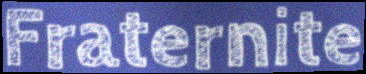
Fraternite